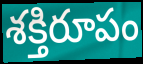
శక్తిరూపం